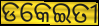
ଡକେଇତୀ